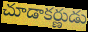
చూడాకర్ణుడు